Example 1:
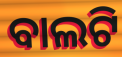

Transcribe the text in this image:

ବାଲଟି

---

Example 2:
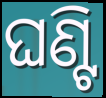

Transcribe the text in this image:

ଘଣ୍ଟି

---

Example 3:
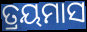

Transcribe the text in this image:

ତ୍ରୟମାସ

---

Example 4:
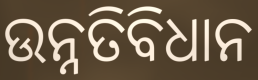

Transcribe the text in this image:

ଉନ୍ନତିବିଧାନ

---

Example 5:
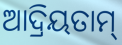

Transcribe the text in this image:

ଆଦ୍ରିୟତାମ୍